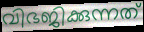
വിഭജിക്കുന്നത്